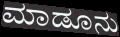
ಮಾಡೂನು